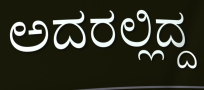
ಅದರಲ್ಲಿದ್ದ